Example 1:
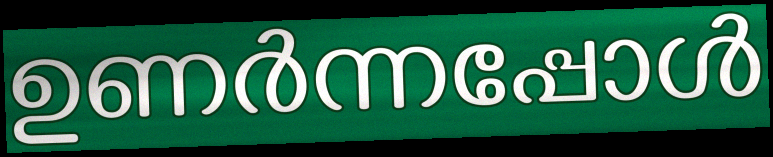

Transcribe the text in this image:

ഉണർന്നപ്പോൾ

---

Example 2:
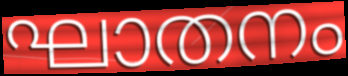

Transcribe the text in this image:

ഘാതനം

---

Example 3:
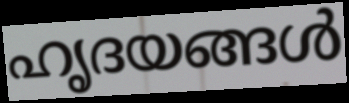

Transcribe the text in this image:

ഹൃദയങ്ങൾ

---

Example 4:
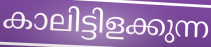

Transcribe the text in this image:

കാലിട്ടിളക്കുന്ന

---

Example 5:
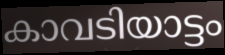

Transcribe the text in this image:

കാവടിയാട്ടം